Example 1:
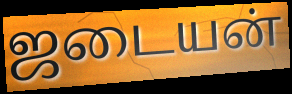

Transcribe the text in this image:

ஜடையன்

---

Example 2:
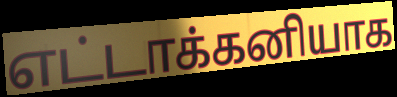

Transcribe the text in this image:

எட்டாக்கனியாக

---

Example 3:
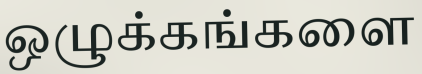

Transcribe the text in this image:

ஒழுக்கங்களை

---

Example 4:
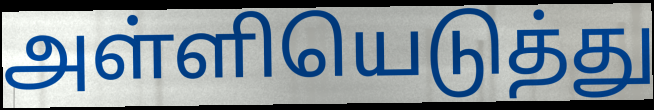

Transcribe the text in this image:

அள்ளியெடுத்து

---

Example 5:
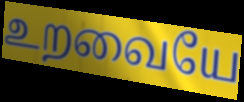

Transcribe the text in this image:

உறவையே